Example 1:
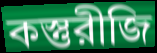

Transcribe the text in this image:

কস্তুরীজি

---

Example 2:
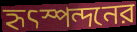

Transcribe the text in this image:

হৃৎস্পন্দনের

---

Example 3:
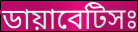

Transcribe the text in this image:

ডায়াবেটিসঃ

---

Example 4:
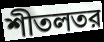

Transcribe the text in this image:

শীতলতর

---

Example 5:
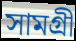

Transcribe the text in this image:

সামগ্রী